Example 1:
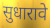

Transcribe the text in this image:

सुधारावे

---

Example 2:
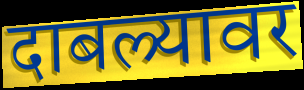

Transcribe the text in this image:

दाबल्यावर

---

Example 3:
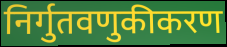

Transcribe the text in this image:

निर्गुतवणुकीकरण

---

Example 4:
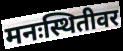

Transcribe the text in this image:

मनःस्थितीवर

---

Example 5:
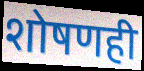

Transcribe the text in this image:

शोषणही